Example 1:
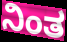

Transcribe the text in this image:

ನಿಂತ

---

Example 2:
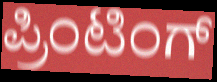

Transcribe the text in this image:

ಪ್ರಿಂಟಿಂಗ್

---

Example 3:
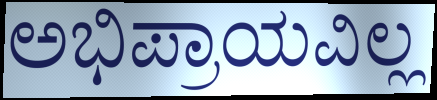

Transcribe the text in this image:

ಅಭಿಪ್ರಾಯವಿಲ್ಲ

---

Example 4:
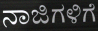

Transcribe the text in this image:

ನಾಜಿಗಳಿಗೆ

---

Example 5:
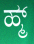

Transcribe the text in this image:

ಹ್ಮ್